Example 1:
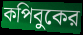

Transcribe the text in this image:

কপিবুকের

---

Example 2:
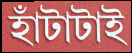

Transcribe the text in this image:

হাঁটাটাই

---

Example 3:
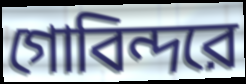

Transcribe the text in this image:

গোবিন্দরে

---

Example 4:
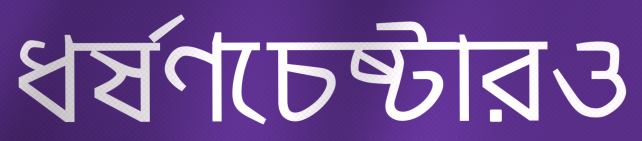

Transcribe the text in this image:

ধর্ষণচেষ্টারও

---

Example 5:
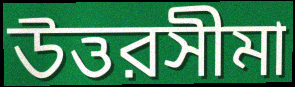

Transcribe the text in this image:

উত্তরসীমা